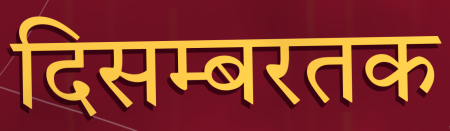
दिसम्बरतक